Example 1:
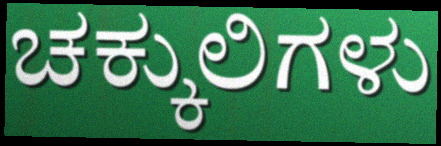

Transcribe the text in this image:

ಚಕ್ಕುಲಿಗಳು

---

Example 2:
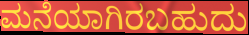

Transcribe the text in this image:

ಮನೆಯಾಗಿರಬಹುದು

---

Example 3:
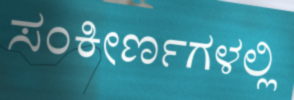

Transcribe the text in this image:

ಸಂಕೀರ್ಣಗಳಲ್ಲಿ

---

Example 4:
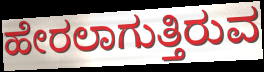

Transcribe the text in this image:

ಹೇರಲಾಗುತ್ತಿರುವ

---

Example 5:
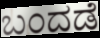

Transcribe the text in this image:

ಬಂದಡೆ